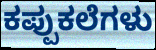
ಕಪ್ಪುಕಲೆಗಳು